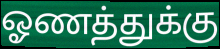
ஓணத்துக்கு